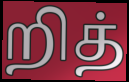
றித்